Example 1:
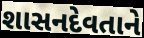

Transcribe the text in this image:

શાસનદેવતાને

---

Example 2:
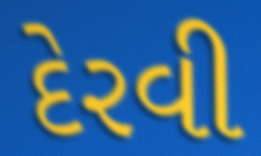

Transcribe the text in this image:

દેરવી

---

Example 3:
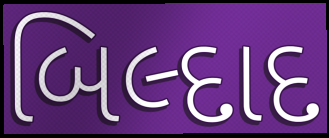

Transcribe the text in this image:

બિલ્દાદ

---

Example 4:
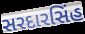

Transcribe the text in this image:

સરદારસિંહ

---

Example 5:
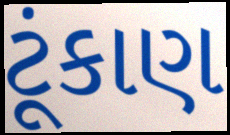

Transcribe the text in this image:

ટૂંકાણ